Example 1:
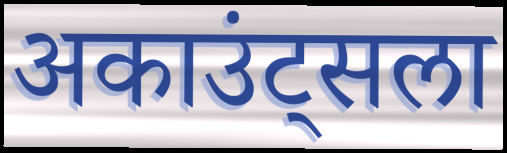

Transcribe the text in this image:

अकाउंट्सला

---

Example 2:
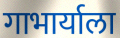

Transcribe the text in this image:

गाभार्याला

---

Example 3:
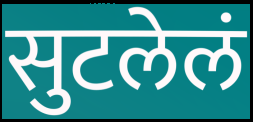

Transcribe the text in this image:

सुटलेलं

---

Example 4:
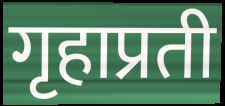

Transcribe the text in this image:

गृहाप्रती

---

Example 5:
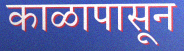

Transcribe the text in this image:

काळापासून